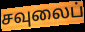
சவுலைப்